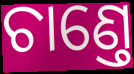
ଚାଣ୍ତେ